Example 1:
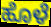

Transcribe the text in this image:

ಹೊಳೆ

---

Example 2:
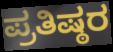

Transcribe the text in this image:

ಪ್ರತಿಷ್ಠರ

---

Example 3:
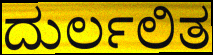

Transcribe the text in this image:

ದುರ್ಲಲಿತ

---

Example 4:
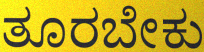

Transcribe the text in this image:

ತೂರಬೇಕು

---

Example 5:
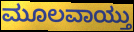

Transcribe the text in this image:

ಮೂಲವಾಯ್ತು